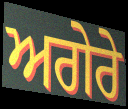
ਅਗੇਰੇ